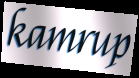
kamrup